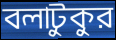
বলাটুকুর